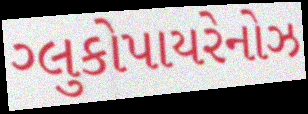
ગ્લુકોપાયરેનોઝ